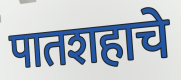
पातशहाचे